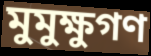
মুমুক্ষুগণ